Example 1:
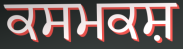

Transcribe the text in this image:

ਕਸਮਕਸ਼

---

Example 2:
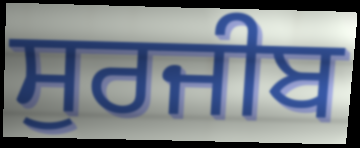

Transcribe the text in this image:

ਸੁਰਜੀਬ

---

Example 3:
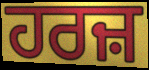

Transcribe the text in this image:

ਹਰਜ਼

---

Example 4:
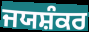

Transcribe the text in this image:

ਜਯਸ਼ੰਕਰ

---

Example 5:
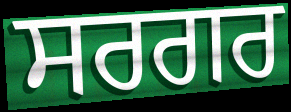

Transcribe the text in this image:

ਸਰਗਰ